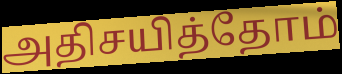
அதிசயித்தோம்